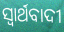
ସ୍ୱାର୍ଥବାଦୀ